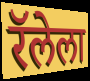
रॅलेला